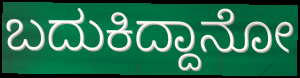
ಬದುಕಿದ್ದಾನೋ